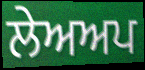
ਲੇਅਅਪ